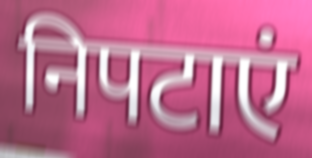
निपटाएं